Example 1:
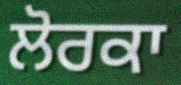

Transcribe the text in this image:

ਲੋਰਕਾ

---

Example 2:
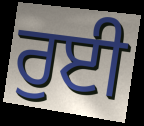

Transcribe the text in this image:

ਰੁਈ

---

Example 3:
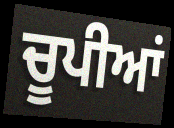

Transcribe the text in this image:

ਚੂਪੀਆਂ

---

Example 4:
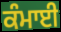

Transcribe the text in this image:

ਕੰਮਾਈ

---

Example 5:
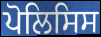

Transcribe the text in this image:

ਪੋਲਿਸਿਸ